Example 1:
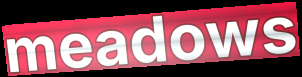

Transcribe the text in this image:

meadows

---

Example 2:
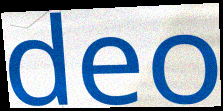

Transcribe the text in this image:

deo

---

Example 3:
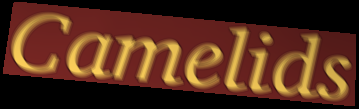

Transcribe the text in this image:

Camelids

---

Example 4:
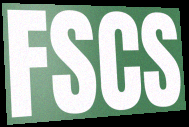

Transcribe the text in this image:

FSCS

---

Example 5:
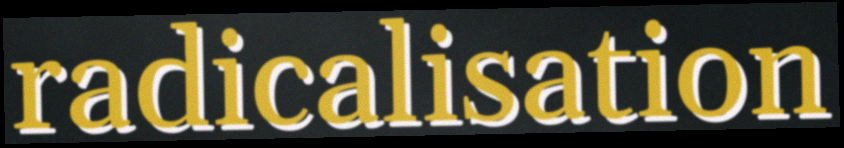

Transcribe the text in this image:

radicalisation